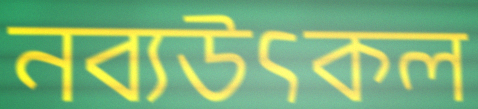
নব্যউৎকল